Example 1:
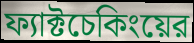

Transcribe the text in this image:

ফ্যাক্টচেকিংয়ের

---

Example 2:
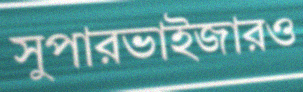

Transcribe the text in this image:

সুপারভাইজারও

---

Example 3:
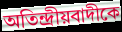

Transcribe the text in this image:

অতিন্দ্রীয়বাদীকে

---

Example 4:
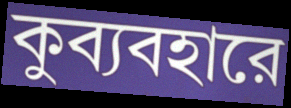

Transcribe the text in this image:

কুব্যবহারে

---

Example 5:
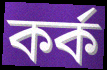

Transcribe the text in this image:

কর্ক